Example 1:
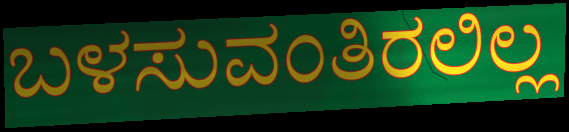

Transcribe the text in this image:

ಬಳಸುವಂತಿರಲಿಲ್ಲ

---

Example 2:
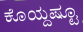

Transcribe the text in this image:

ಕೊಯ್ದಷ್ಟೂ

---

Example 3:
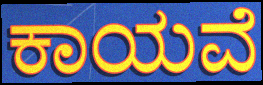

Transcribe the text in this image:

ಕಾಯವೆ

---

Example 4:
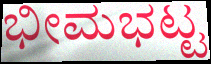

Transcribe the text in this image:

ಭೀಮಭಟ್ಟ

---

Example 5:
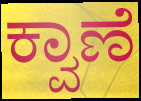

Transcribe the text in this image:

ಕ್ವಾಣೆ